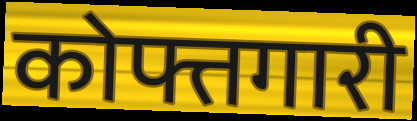
कोफ्तगारी